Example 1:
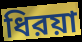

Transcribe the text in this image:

ধিরয়া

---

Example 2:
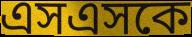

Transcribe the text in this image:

এসএসকে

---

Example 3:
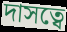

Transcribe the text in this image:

দাসত্বে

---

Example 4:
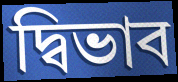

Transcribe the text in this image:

দ্বিভাব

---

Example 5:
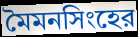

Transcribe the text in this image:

মৈমনসিংহের